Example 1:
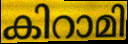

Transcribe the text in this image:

കിറാമി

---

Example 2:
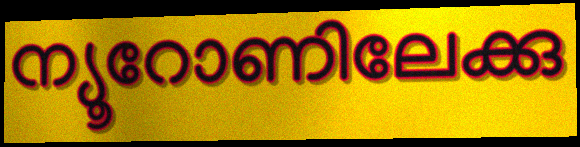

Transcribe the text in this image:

ന്യൂറോണിലേക്കു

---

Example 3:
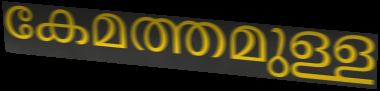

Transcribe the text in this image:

കേമത്തമുള്ള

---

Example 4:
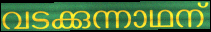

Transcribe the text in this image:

വടക്കുന്നാഥന്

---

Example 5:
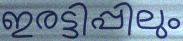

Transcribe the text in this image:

ഇരട്ടിപ്പിലും